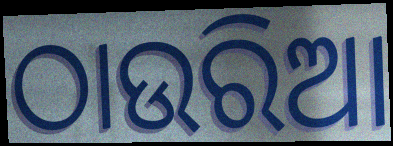
ଠାଉରିଆ